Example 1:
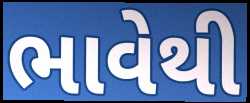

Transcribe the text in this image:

ભાવેથી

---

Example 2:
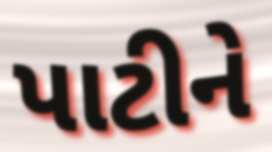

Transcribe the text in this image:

પાટીને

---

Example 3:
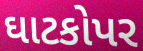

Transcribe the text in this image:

ઘાટકોપર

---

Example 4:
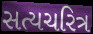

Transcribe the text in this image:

સત્યચરિત્ર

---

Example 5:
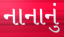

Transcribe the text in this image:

નાનાનું